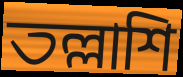
তল্লাশি